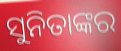
ସୁନିତାଙ୍କର